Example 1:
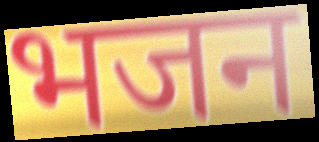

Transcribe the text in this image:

भजन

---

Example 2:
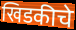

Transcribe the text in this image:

खिडकीचे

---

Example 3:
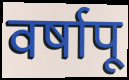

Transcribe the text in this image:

वर्षापू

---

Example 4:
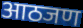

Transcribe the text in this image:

आठजण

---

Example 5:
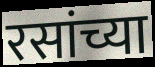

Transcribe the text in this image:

रसांच्या